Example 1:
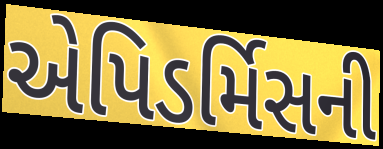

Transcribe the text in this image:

એપિડર્મિસની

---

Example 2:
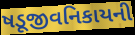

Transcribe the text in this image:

ષડૂજીવનિકાયની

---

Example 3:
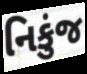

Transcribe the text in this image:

નિકુંજ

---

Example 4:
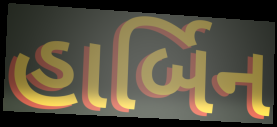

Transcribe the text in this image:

હાર્બિન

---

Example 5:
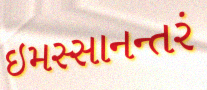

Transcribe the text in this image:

ઇમસ્સાનન્તરં